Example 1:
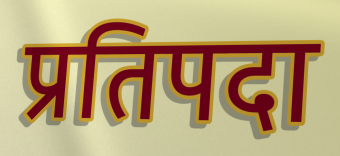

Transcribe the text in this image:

प्रतिपदा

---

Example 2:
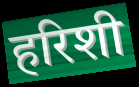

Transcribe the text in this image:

हरिशी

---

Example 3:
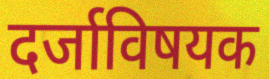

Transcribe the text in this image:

दर्जाविषयक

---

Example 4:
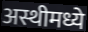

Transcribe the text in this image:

अस्थीमध्ये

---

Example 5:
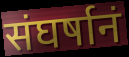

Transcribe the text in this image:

संघर्षानं